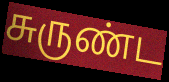
சுருண்ட